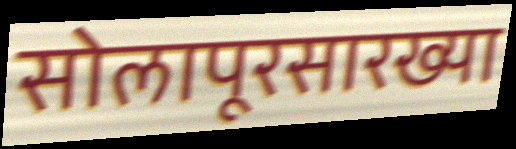
सोलापूरसारख्या